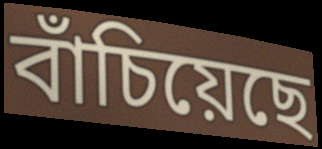
বাঁচিয়েছে